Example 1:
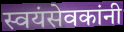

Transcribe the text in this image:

स्वयंसेवकांनी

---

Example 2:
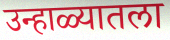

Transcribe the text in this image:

उन्हाळ्यातला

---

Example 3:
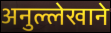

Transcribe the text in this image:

अनुल्लेखाने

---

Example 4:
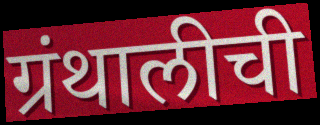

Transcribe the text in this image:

ग्रंथालीची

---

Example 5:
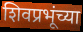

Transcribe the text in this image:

शिवप्रभूंच्या